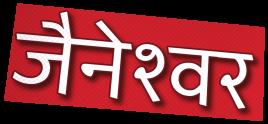
जैनेश्वर